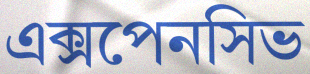
এক্সপেনসিভ